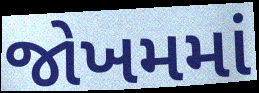
જોખમમાં